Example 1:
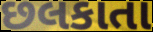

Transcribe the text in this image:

છલકાતા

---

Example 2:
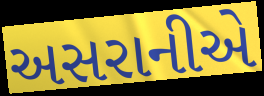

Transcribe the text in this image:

અસરાનીએ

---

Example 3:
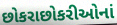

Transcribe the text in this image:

છોકરાછોકરીઓનાં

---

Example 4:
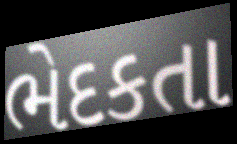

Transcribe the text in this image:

ભેદકતા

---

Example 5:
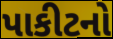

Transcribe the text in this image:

પાકીટનો